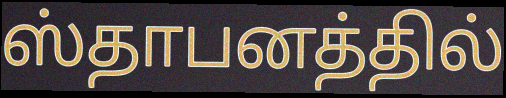
ஸ்தாபனத்தில்